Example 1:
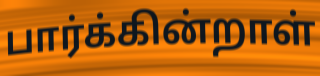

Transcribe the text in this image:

பார்க்கின்றாள்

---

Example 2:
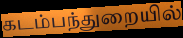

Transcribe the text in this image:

கடம்பந்துறையில்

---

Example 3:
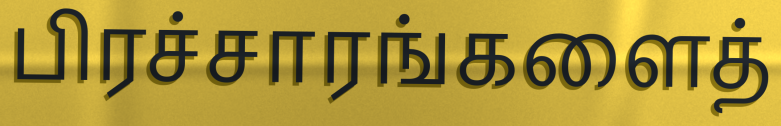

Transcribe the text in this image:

பிரச்சாரங்களைத்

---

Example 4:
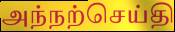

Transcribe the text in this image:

அந்நற்செய்தி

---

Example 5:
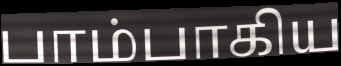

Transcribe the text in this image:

பாம்பாகிய